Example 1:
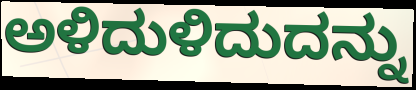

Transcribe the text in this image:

ಅಳಿದುಳಿದುದನ್ನು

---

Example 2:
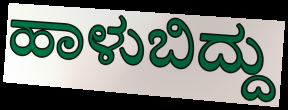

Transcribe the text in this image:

ಹಾಳುಬಿದ್ದು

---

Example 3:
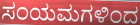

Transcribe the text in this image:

ಸಂಯಮಗಳಿಂದ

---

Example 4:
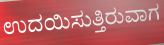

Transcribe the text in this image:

ಉದಯಿಸುತ್ತಿರುವಾಗ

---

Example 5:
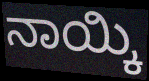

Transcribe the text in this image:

ನಾಯ್ಕಿ